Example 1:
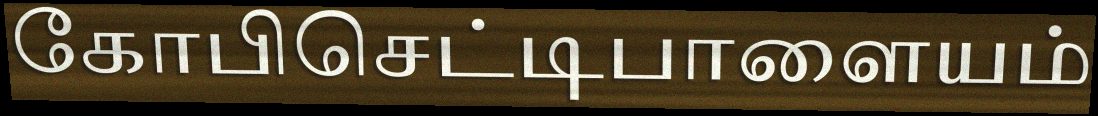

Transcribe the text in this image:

கோபிசெட்டிபாளையம்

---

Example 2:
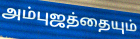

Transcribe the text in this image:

அம்புஜத்தையும்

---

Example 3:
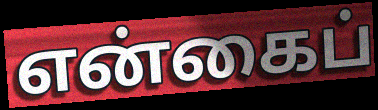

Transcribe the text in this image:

என்கைப்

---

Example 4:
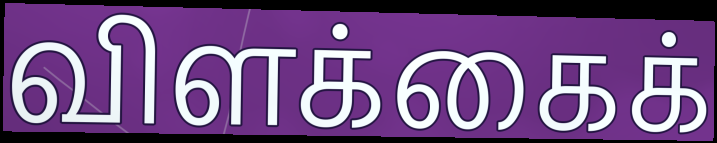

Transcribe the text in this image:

விளக்கைக்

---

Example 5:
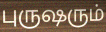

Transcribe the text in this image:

புருஷரும்